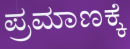
ಪ್ರಮಾಣಕ್ಕೆ